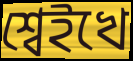
শ্বেইখে